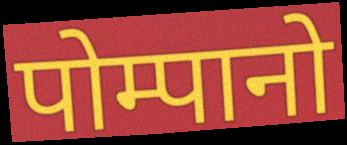
पोम्पानो